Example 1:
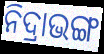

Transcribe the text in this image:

ନିଦ୍ରାଭଙ୍ଗ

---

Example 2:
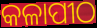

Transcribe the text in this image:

କଳାପୀଠ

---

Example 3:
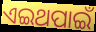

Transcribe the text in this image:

ଏଇଥପାଇଁ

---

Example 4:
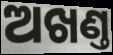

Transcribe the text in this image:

ଅଖଣ୍ତ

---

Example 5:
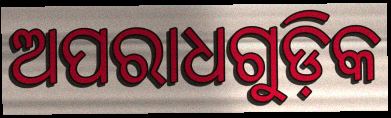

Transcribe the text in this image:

ଅପରାଧଗୁଡ଼ିକ